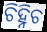
ଚିହ୍ନିଚ